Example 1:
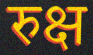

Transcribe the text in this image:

रुक्ष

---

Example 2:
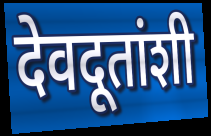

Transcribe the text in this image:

देवदूतांशी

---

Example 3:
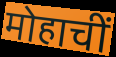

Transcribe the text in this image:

मोहाचीं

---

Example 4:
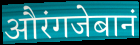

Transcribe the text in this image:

औरंगजेबानं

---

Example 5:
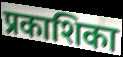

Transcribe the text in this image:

प्रकाशिका